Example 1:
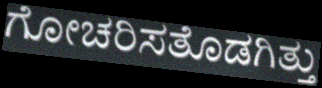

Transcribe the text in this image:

ಗೋಚರಿಸತೊಡಗಿತ್ತು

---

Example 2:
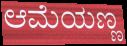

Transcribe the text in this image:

ಆಮೆಯಣ್ಣ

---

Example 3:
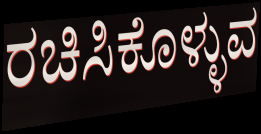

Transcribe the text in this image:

ರಚಿಸಿಕೊಳ್ಳುವ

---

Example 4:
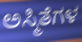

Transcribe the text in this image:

ಅಸ್ಮಿತೆಗಳ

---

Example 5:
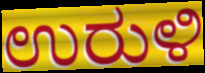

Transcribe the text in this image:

ಉರುಳಿ